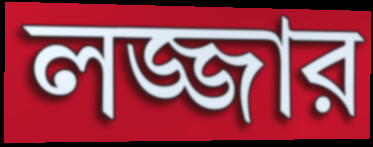
লজ্জার